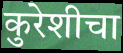
कुरेशीचा